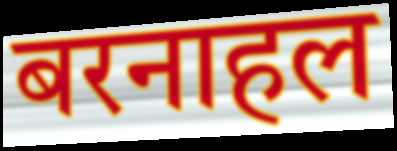
बरनाहल